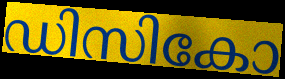
ഡിസികോ